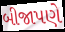
બીજાપણે